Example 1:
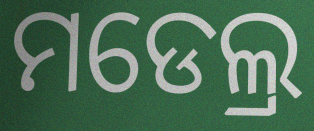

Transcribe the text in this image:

ମଡେଲ୍ର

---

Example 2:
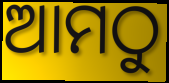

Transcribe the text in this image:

ଆମଠୁ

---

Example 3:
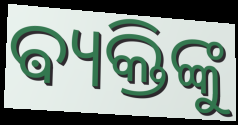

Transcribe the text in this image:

ଵ୍ୟକ୍ତିଙ୍କୁ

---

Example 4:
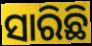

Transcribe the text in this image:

ସାରିଛି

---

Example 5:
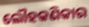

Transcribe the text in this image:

ଲୌହକଣିକାର